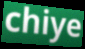
chiye